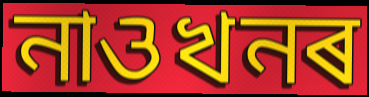
নাওখনৰ